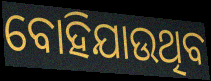
ବୋହିଯାଉଥିବ